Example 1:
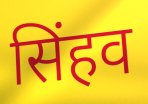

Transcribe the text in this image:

सिंहव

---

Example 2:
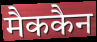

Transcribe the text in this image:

मैककैन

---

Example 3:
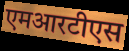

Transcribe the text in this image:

एमआरटीएस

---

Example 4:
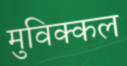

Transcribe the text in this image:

मुविक्कल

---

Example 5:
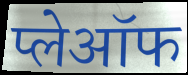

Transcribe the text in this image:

प्‍लेऑफ